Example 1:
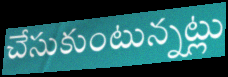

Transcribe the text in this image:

చేసుకుంటున్నట్లు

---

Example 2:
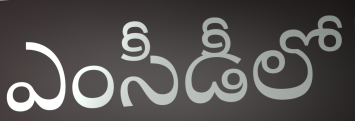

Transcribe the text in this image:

ఎంసీడీలో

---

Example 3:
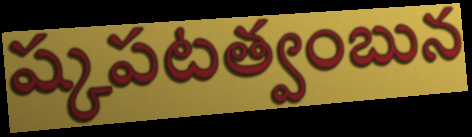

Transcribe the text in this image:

ష్కపటత్వంబున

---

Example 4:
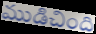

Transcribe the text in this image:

ముడిచింది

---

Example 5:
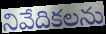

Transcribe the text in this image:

నివేదికలను